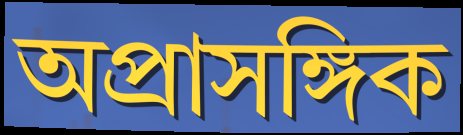
অপ্রাসঙ্গিক